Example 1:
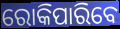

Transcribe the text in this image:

ରୋକିପାରିବେ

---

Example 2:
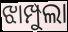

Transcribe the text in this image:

ଝାମ୍ପୁଲା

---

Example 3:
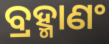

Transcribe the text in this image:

ବ୍ରହ୍ମାଣଂ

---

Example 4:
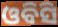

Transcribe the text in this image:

ଓବିସି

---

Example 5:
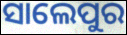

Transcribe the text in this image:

ସାଲେପୁର